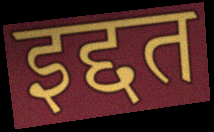
इद्दत